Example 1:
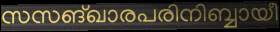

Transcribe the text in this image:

സസങ്ഖാരപരിനിബ്ബായീ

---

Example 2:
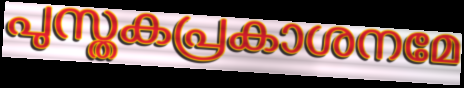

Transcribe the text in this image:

പുസ്തകപ്രകാശനമേ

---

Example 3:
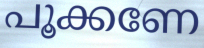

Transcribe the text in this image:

പൂക്കണേ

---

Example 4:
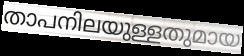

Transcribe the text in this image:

താപനിലയുള്ളതുമായ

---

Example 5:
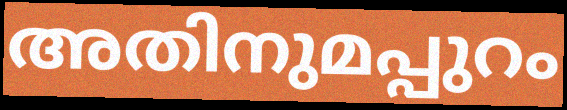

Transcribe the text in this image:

അതിനുമപ്പുറം